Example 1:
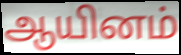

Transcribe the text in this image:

ஆயினம்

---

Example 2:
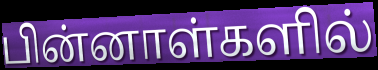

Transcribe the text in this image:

பின்னாள்களில்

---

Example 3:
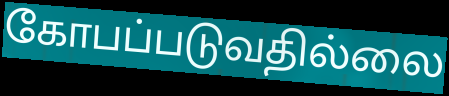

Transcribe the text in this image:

கோபப்படுவதில்லை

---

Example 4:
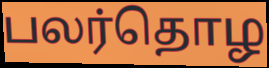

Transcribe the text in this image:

பலர்தொழ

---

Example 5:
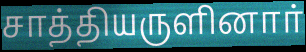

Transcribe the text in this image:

சாத்தியருளினார்